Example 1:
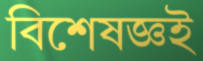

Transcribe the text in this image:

বিশেষজ্ঞই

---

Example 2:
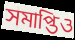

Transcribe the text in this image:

সমাপ্তিও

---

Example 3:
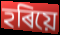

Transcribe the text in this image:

হৰিয়ে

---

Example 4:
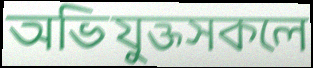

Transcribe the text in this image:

অভিযুক্তসকলে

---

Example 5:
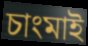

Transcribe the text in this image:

চাংমাই